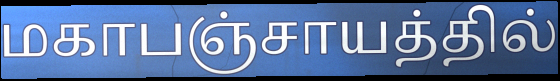
மகாபஞ்சாயத்தில்